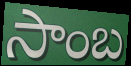
సాంబ